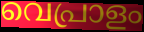
വെപ്രാളം